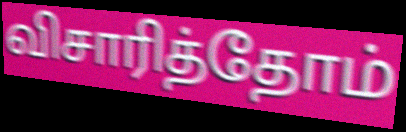
விசாரித்தோம்